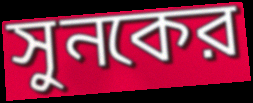
সুনকের